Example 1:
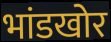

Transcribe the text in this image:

भांडखोर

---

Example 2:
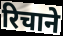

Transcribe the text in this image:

रिचाने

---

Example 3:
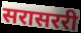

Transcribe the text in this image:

सरासररी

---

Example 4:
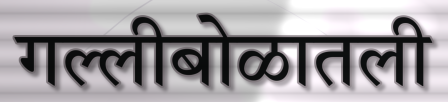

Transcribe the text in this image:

गल्लीबोळातली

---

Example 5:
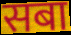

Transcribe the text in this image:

सबा